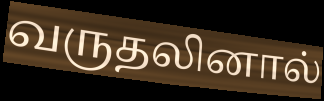
வருதலினால்